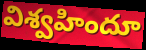
విశ్వహిందూ